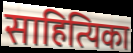
साहित्यिका